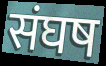
संघष